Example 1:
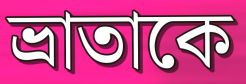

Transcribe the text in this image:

ভ্রাতাকে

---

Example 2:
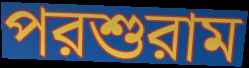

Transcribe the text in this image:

পরশুরাম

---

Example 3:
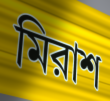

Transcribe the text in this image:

মিরাশ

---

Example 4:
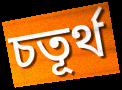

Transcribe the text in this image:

চতূর্থ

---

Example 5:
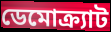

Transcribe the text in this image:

ডেমোক্র্যাট